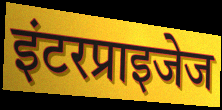
इंटरप्राइजेज